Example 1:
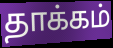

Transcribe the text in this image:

தாக்கம்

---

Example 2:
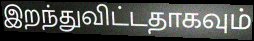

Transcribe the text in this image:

இறந்துவிட்டதாகவும்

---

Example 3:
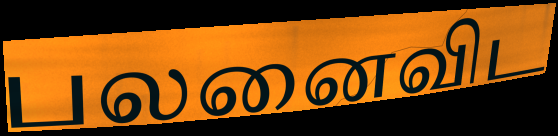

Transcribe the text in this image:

பலனைவிட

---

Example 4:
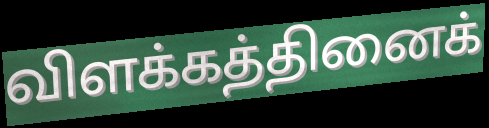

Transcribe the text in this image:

விளக்கத்தினைக்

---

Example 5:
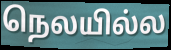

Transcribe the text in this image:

நெலயில்ல